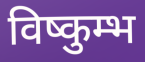
विष्कुम्भ